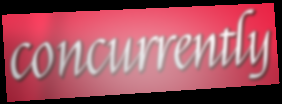
concurrently